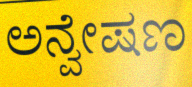
ಅನ್ವೇಷಣ